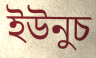
ইউনুচ